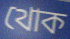
থোক